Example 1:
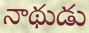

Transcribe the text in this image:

నాథుడు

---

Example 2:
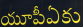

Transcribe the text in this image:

యూపీఏకు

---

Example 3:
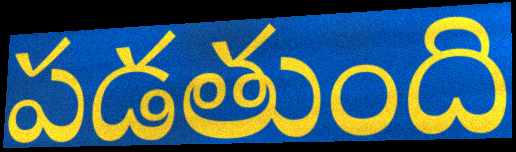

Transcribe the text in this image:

పడతుంది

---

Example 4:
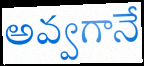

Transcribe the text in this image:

అవ్వగానే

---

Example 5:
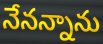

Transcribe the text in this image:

నేనన్నాను